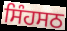
ਸਿੰਹਸਠ